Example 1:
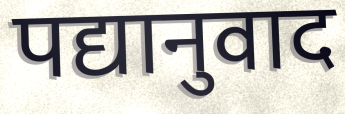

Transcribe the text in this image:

पद्यानुवाद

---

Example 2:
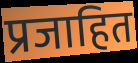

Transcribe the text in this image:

प्रजाहित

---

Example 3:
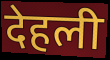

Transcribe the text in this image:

देहली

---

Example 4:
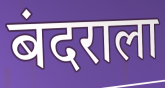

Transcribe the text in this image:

बंदराला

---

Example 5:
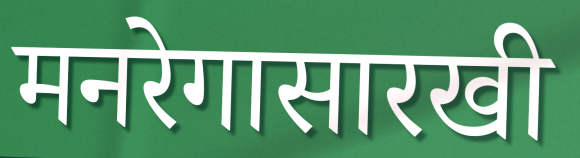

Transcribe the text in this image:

मनरेगासारखी